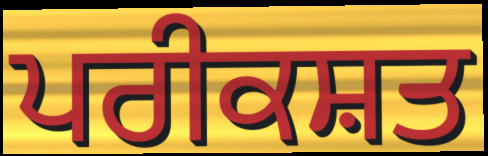
ਪਰੀਕਸ਼ਤ